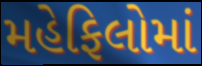
મહેફિલોમાં